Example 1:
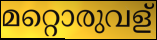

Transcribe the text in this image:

മറ്റൊരുവള്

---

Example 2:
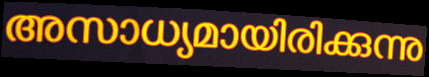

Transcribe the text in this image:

അസാധ്യമായിരിക്കുന്നു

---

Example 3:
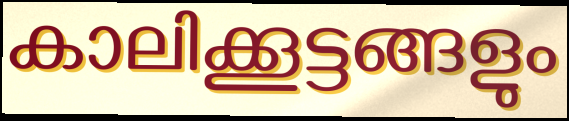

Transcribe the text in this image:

കാലിക്കൂട്ടങ്ങളും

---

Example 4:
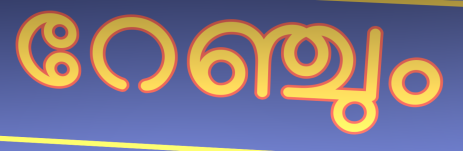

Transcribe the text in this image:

റേഞ്ചും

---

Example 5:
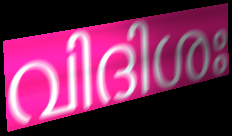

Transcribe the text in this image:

വിദിശഃ